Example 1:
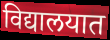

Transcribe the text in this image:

विद्यालयात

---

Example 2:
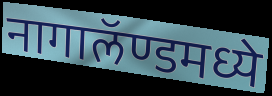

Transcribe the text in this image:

नागालॅण्डमध्ये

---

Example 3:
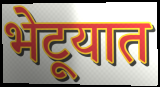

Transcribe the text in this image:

भेटूयात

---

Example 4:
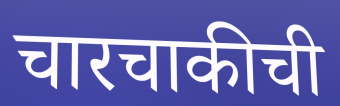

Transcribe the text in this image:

चारचाकीची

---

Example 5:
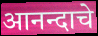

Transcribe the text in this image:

आनन्दाचे